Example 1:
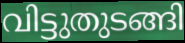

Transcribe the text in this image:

വിട്ടുതുടങ്ങി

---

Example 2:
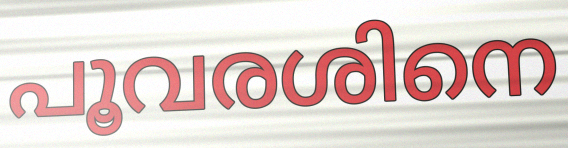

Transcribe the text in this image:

പൂവരശിനെ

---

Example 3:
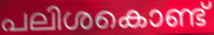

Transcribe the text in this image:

പലിശകൊണ്ട്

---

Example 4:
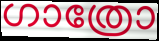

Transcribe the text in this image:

ഗാത്രോ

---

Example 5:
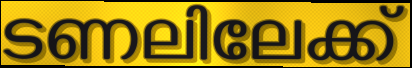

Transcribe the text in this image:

ടണലിലേക്ക്